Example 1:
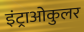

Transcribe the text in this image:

इंट्राओकुलर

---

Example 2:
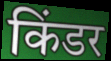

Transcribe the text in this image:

किंडर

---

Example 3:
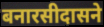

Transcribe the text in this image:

बनारसीदासने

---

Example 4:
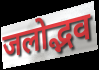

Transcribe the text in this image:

जलोद्भव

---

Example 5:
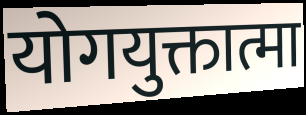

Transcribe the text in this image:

योगयुक्तात्मा